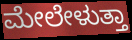
ಮೇಲೇಳುತ್ತಾ